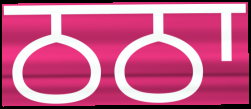
ਠਠਾ